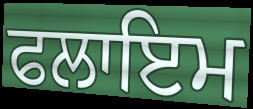
ਫਲਾਇਮ